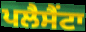
ਪਲੈਸੈਂਟਾ